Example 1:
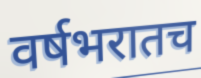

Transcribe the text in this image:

वर्षभरातच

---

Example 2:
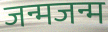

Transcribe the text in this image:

जन्मजन्म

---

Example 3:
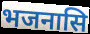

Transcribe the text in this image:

भजनासि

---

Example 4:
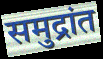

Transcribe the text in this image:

समुद्रांत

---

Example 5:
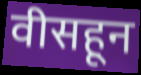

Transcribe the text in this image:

वीसहून